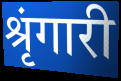
श्रृंगारी